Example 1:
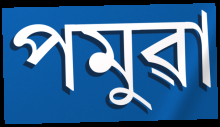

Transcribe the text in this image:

পমুৱা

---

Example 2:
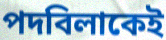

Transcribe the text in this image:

পদবিলাকেই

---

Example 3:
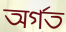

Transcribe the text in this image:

অৰ্গত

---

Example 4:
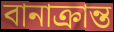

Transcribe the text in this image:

বানাক্ৰান্ত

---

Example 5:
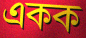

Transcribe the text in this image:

একক